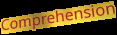
Comprehension